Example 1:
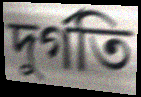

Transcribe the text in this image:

দুৰ্গতি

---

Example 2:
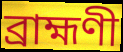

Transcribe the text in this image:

ব্ৰাহ্মণী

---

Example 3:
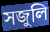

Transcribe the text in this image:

সজুলি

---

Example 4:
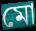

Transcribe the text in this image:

মো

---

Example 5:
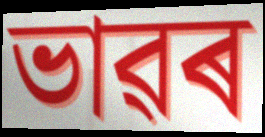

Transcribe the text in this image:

ভাৱৰ